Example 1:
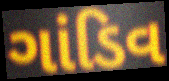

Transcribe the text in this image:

ગાંડિવ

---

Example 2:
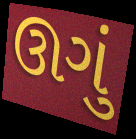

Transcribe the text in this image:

ઊગું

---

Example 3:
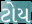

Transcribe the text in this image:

ટોય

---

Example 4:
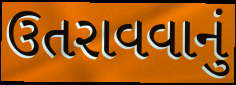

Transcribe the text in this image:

ઉતરાવવાનું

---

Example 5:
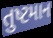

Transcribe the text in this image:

તુષ્ટમાન